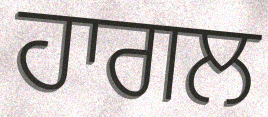
ਹਾਗਲ